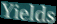
Yields